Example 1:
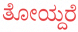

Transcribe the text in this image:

ತೋಯ್ದರೆ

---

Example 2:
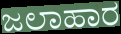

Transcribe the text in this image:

ಜಲಾಹಾರ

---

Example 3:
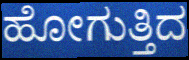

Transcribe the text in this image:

ಹೋಗುತ್ತಿದ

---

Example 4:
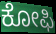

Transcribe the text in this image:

ಕೋಫಿ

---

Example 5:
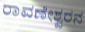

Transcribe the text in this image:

ರಾವಣೇಶ್ವರನ